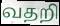
வதறி